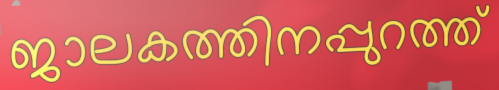
ജാലകത്തിനപ്പുറത്ത്